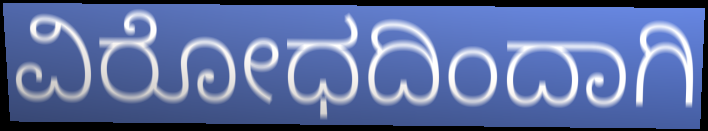
ವಿರೋಧದಿಂದಾಗಿ